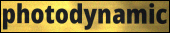
photodynamic